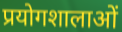
प्रयोगशालाओं